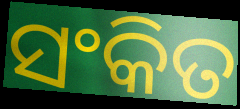
ସଂକିତ